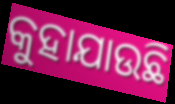
କୁହାଯାଉଛି